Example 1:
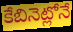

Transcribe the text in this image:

కేబినెట్లోనే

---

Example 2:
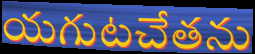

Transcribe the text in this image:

యగుటచేతను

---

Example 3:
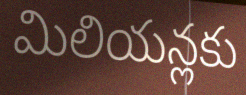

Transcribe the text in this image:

మిలియన్లకు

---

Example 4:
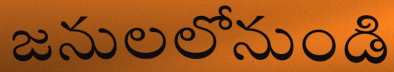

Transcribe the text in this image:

జనులలోనుండి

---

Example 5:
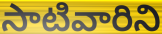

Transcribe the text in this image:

సాటివారిని